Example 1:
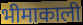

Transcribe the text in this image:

भीमाकाली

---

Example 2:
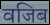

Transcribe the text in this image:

वजिब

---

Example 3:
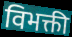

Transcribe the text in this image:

विभक्ती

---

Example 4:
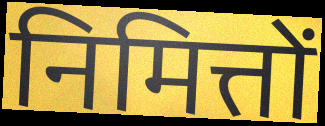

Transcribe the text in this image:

निमित्तों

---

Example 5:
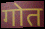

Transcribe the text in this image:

गोत